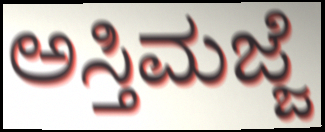
ಅಸ್ತಿಮಜ್ಜೆ